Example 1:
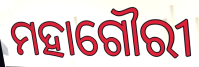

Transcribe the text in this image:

ମହାଗୌରୀ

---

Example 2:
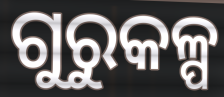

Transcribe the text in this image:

ଗୁରୁକଳ୍ପ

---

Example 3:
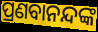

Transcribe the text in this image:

ପ୍ରଣବାନନ୍ଦଙ୍କ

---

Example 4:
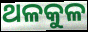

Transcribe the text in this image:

ଥଳକୁଳ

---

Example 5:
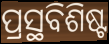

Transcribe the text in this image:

ପ୍ରସ୍ଥବିଶିଷ୍ଟ